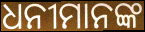
ଧନୀମାନଙ୍କ